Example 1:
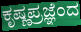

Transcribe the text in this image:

ಕೃಷ್ಣಪ್ರಜ್ಞೆಂದ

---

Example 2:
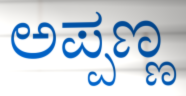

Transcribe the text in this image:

ಅಪ್ಪಣ್ಣ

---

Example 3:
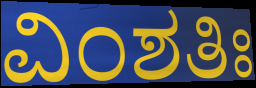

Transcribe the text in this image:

ವಿಂಶತಿಃ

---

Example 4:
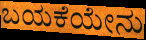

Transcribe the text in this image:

ಬಯಕೆಯೇನು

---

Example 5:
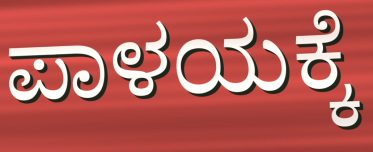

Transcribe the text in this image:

ಪಾಳಯಕ್ಕೆ